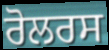
ਰੋਲਰਸ